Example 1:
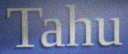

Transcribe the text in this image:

Tahu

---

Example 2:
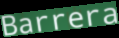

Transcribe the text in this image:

Barrera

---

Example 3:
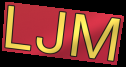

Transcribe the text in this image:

LJM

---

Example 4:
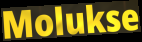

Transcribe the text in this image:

Molukse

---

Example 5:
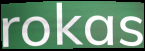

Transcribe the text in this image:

rokas